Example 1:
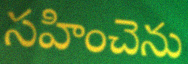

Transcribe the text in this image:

సహించెను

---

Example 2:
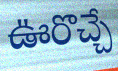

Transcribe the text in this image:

ఊరొచ్చే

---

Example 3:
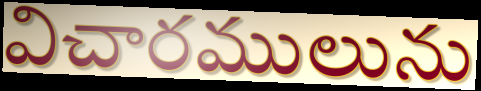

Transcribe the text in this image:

విచారములును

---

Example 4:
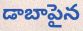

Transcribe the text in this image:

డాబాపైన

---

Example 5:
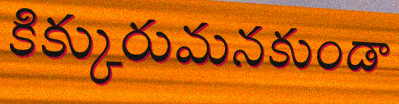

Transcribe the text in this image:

కిక్కురుమనకుండా